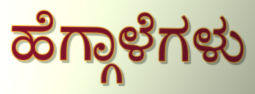
ಹೆಗ್ಗಾಳೆಗಳು